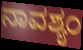
ನಾವಶ್ಯಂ